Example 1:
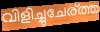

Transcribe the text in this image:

വിളിച്ചുചേര്ത്ത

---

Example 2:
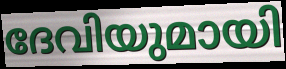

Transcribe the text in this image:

ദേവിയുമായി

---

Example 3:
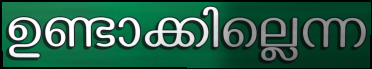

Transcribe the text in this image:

ഉണ്ടാക്കില്ലെന്ന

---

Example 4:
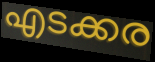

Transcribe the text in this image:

എടക്കര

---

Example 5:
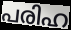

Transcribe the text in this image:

പരിഹ